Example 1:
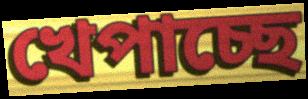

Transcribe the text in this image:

খেপাচ্ছে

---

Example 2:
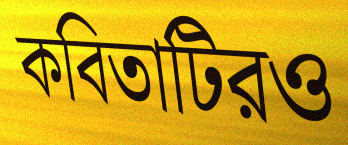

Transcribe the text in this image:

কবিতাটিরও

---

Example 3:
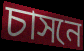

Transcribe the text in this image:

চাসনে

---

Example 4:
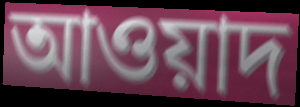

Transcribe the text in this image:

আওয়াদ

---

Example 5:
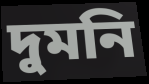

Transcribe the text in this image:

দুমনি